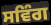
ਸਵਿੰਗ